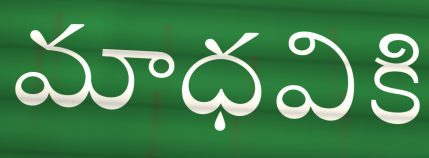
మాధవికి